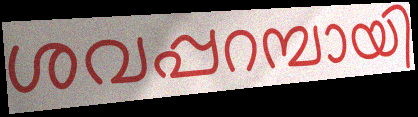
ശവപ്പറമ്പായി